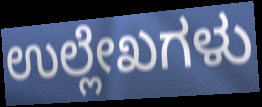
ಉಲ್ಲೇಖಗಳು